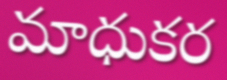
మాధుకర